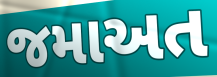
જમાઅત